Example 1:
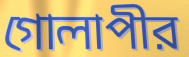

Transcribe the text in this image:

গোলাপীর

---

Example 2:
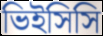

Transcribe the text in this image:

ভিইসিসি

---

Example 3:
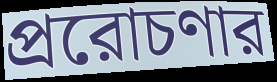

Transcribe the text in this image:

প্ররোচণার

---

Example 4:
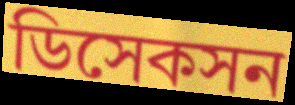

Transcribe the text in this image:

ডিসেকসন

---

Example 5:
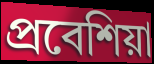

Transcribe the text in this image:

প্রবেশিয়া